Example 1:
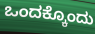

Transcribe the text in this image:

ಒಂದಕ್ಕೊಂದು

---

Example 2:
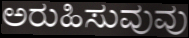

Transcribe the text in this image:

ಅರುಹಿಸುವುವು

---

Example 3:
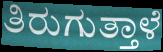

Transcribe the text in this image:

ತಿರುಗುತ್ತಾಳೆ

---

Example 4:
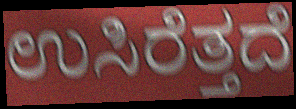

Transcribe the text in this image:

ಉಸಿರೆತ್ತದೆ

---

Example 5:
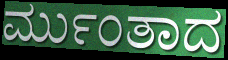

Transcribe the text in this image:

ರ್ಮುಂತಾದ